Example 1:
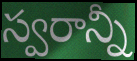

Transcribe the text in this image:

స్వరాన్నీ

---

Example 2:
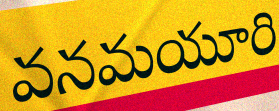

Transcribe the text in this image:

వనమయూరి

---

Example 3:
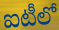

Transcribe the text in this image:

ఐటీలో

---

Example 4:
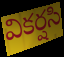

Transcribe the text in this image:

వికర్షసి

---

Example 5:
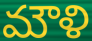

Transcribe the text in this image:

మౌళి